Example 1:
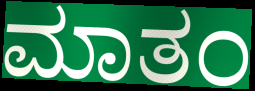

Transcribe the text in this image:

ಮಾತಂ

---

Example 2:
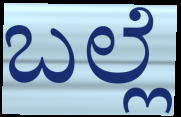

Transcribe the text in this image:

ಬಲ್ಲೆ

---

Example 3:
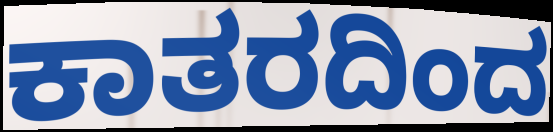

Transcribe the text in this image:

ಕಾತರದಿಂದ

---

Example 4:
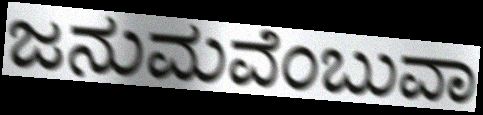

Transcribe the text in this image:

ಜನುಮವೆಂಬುವಾ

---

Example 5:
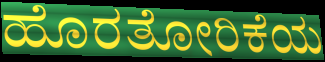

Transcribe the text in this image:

ಹೊರತೋರಿಕೆಯ